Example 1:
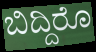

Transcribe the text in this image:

ಬಿದ್ದಿರೊ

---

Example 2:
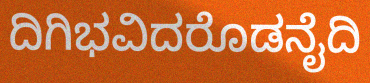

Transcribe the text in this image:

ದಿಗಿಭವಿದರೊಡನೈದಿ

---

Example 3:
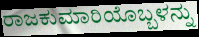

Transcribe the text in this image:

ರಾಜಕುಮಾರಿಯೊಬ್ಬಳನ್ನು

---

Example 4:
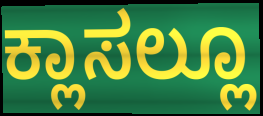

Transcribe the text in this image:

ಕ್ಲಾಸಲ್ಲೂ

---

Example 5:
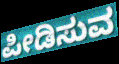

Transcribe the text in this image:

ಪೀಡಿಸುವ